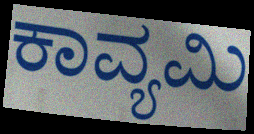
ಕಾವ್ಯಮಿ